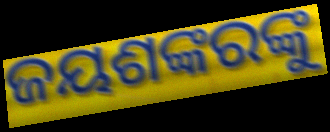
ଜୟଶଙ୍କରଙ୍କୁ